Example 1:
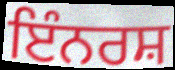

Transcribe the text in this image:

ਇੰਨਰਸ਼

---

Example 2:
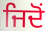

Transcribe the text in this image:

ਜਿਦੋਂ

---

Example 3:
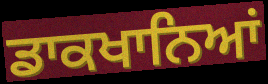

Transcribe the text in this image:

ਡਾਕਖਾਨਿਆਂ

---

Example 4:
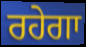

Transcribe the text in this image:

ਰਹੇਗਾ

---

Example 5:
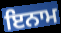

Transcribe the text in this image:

ਇਨਾਮ